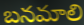
బనమాలి